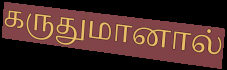
கருதுமானால்